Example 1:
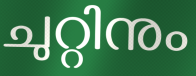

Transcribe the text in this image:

ചുറ്റിനും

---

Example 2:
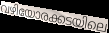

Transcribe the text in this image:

വഴിയോരക്കടയിലെ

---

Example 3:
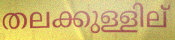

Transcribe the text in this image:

തലക്കുള്ളില്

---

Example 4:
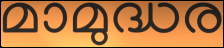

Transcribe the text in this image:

മാമുദ്ധര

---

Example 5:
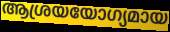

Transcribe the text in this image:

ആശ്രയയോഗ്യമായ